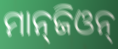
ମାନ୍‌ଜିଓନ୍